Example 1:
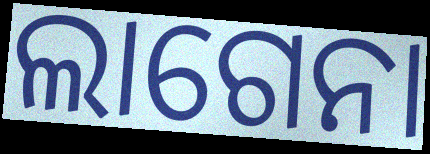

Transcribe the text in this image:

ଲାଗେନା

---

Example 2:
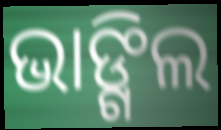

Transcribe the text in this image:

ଭାଙ୍ଗିଲ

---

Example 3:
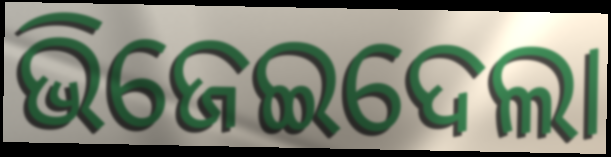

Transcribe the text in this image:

ଭିଜେଇଦେଲା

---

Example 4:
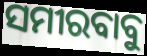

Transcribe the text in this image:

ସମୀରବାବୁ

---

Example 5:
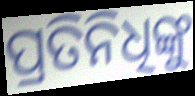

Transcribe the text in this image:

ପ୍ରତିନିଧିଙ୍କୁ